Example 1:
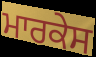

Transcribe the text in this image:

ਮਾਰਕੇਸ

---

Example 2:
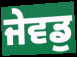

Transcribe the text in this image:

ਜੇਵਡੁ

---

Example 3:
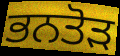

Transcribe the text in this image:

ਭਨਤੋੜ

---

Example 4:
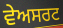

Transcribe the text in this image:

ਵੇਅਸਰਟ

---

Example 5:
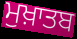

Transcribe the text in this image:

ਮੁਖ਼ਾਤਬ